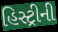
હિસ્ટ્રીની